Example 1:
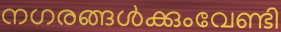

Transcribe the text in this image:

നഗരങ്ങൾക്കുംവേണ്ടി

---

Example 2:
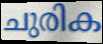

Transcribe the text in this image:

ചുരിക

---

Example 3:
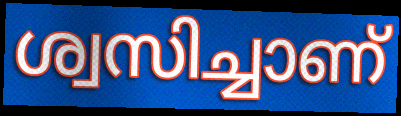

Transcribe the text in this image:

ശ്വസിച്ചാണ്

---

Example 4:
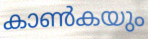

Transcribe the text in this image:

കാൺകയും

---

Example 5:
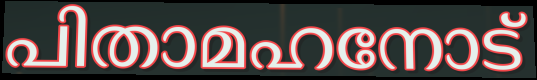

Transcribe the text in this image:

പിതാമഹനോട്